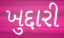
ખુદ્દારી